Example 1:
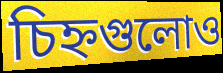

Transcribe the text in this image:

চিহ্নগুলোও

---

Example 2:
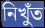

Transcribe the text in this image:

নিখুঁত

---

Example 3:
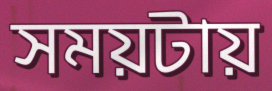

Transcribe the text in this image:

সময়টায়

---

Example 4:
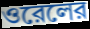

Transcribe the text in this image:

ওরেলের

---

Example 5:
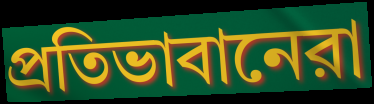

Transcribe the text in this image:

প্রতিভাবানেরা